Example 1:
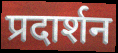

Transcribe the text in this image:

प्रदार्शन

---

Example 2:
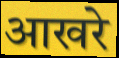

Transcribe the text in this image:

आखरे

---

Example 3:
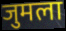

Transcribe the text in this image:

जुमला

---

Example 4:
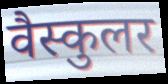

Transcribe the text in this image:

वैस्कुलर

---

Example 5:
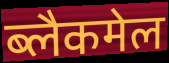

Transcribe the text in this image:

ब्लैकमेल